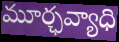
మూర్ఛవ్యాధి